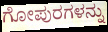
ಗೋಪುರಗಳನ್ನು